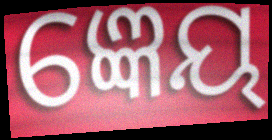
ଜ୍ଞେୟ